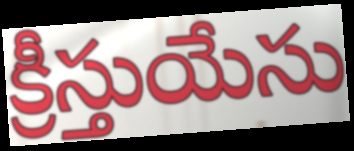
క్రీస్తుయేసు